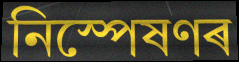
নিস্পেষণৰ